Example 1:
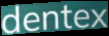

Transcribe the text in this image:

dentex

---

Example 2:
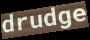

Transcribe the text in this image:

drudge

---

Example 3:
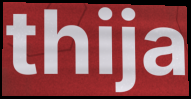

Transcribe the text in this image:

thija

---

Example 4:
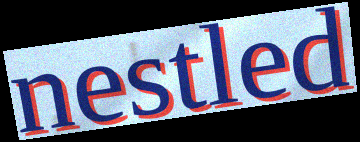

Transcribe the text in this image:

nestled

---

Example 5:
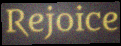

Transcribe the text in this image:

Rejoice